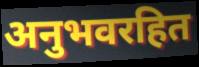
अनुभवरहित